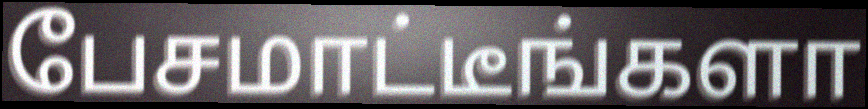
பேசமாட்டீங்களா